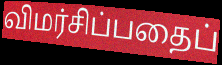
விமர்சிப்பதைப்